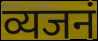
व्यजनं